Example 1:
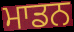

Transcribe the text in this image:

ਮਾਡਨ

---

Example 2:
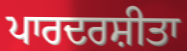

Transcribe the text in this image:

ਪਾਰਦਰਸ਼ੀਤਾ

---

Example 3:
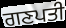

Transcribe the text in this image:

ਗਣਪਤੀ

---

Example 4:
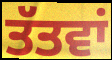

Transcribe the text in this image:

ਤੱਤਵਾਂ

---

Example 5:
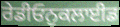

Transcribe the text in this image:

ਰੇਡੀਓਨੁਕਲਾਈਡ